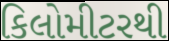
કિલોમીટરથી